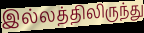
இல்லத்திலிருந்து